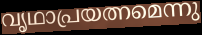
വൃഥാപ്രയത്നമെന്നു